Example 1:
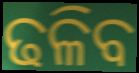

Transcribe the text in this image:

ଢଳିବ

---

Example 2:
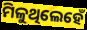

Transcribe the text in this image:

ମିଳୁଥିଲେହେଁ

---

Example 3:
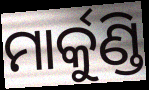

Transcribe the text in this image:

ମାର୍କୁଣ୍ଡି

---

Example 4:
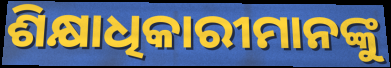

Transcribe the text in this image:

ଶିକ୍ଷାଧିକାରୀମାନଙ୍କୁ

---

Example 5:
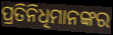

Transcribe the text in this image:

ପ୍ରତିନିଧିମାନଙ୍କର